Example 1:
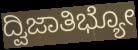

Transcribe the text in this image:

ದ್ವಿಜಾತಿಭ್ಯೋ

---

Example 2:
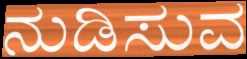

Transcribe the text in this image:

ನುಡಿಸುವ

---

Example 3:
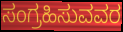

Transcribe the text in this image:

ಸಂಗ್ರಹಿಸುವವರ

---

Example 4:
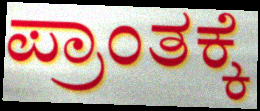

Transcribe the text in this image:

ಪ್ರಾಂತಕ್ಕೆ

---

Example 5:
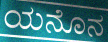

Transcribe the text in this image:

ಯನೊನ